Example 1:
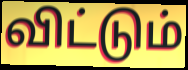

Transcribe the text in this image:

விட்டும்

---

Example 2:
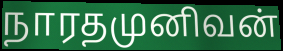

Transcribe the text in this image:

நாரதமுனிவன்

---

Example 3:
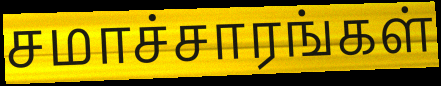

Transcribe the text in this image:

சமாச்சாரங்கள்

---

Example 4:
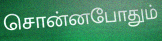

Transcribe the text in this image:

சொன்னபோதும்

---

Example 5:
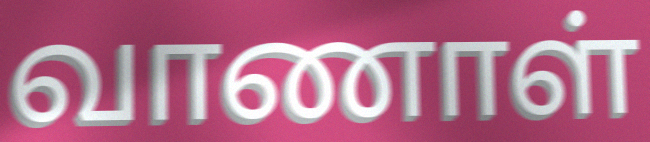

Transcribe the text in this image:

வாணாள்